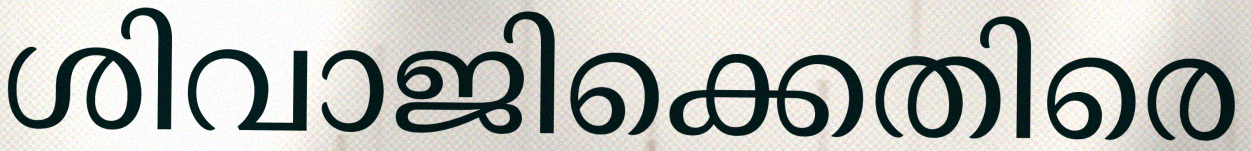
ശിവാജിക്കെതിരെ